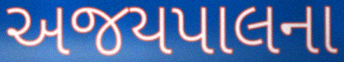
અજયપાલના